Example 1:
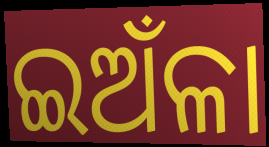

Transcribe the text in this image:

ଇଅଁଳା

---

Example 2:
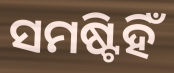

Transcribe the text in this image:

ସମଷ୍ଟିହିଁ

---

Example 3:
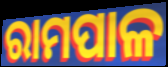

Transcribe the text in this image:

ରାମପାଳ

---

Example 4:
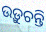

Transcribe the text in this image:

ଉଡ଼ୁଚନ୍ତି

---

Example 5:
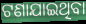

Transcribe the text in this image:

ଟଣାଯାଇଥିବା